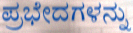
ಪ್ರಭೇದಗಳನ್ನು